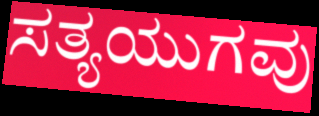
ಸತ್ಯಯುಗವು